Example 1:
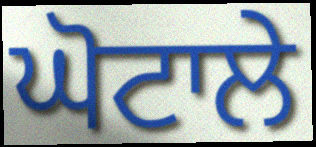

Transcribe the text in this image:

ਘੋਟਾਲੇ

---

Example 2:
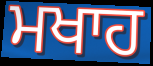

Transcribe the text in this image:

ਮਖਾਹ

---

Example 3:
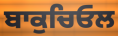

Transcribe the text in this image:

ਬਾਕੁਚਿਓਲ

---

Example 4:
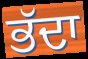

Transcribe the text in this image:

ਭੱਦਾ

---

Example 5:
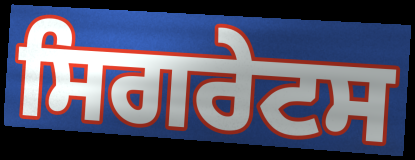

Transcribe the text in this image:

ਸਿਗਰੇਟਸ